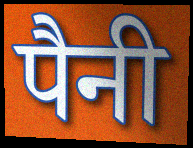
पैनी